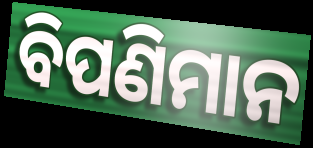
ବିପଣିମାନ